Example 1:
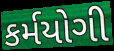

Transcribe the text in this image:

કર્મયોગી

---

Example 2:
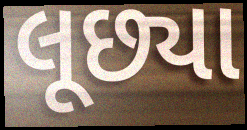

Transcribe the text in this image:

લૂછ્યા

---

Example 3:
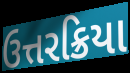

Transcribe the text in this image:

ઉત્તરક્રિયા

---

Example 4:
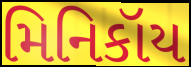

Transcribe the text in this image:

મિનિકૉય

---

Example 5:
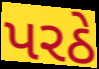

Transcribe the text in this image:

પરઠે